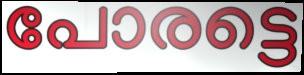
പോരട്ടെ